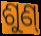
ଶୁଣ୍